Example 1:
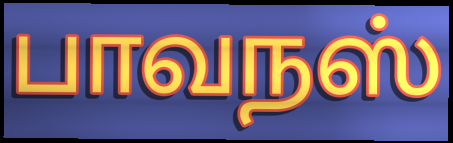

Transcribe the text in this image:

பாவநஸ்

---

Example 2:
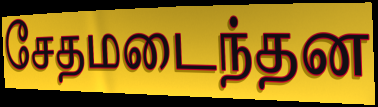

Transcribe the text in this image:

சேதமடைந்தன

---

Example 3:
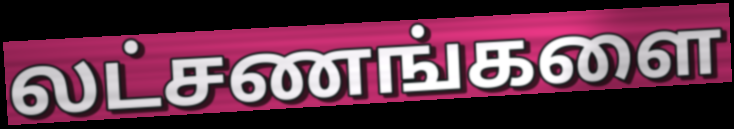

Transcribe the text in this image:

லட்சணங்களை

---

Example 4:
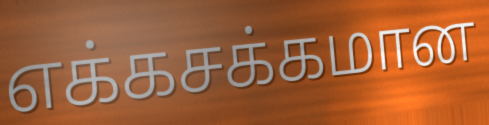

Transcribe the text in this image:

எக்கசக்கமான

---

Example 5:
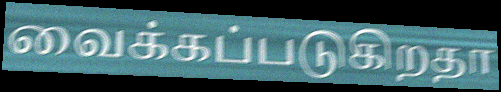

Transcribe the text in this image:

வைக்கப்படுகிறதா